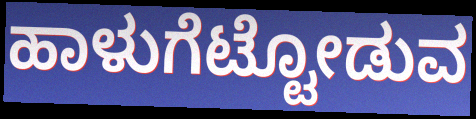
ಹಾಳುಗೆಟ್ಟೋಡುವ